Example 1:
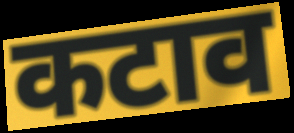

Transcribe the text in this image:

कटाव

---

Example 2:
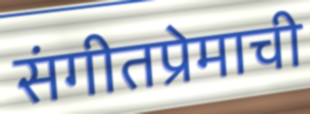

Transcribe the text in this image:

संगीतप्रेमाची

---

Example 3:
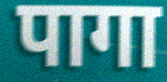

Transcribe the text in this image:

पागा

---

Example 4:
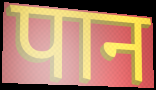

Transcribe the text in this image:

पान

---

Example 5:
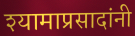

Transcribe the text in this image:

श्यामाप्रसादांनी